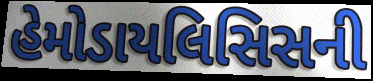
હેમોડાયલિસિસની